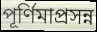
পূর্ণিমাপ্রসন্ন